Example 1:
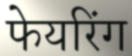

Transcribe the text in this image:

फेयरिंग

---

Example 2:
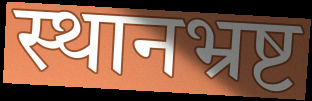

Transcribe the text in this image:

स्थानभ्रष्ट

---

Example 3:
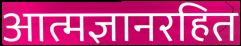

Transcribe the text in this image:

आत्मज्ञानरहित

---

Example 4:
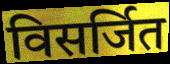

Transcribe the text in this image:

विसर्जित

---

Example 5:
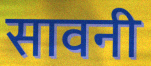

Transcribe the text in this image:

सावनी